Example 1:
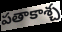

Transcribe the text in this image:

పతాకాశ్చ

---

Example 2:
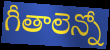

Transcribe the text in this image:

గీతాలెన్నో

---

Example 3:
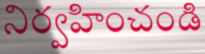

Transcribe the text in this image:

నిర్వహించండి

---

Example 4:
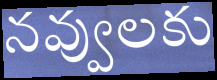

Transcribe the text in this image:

నవ్వులకు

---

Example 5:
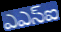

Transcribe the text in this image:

ఎఎస్ఐ